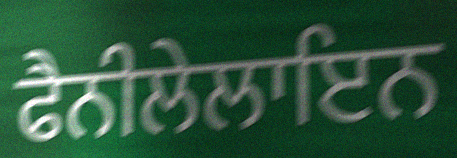
ਫੈਨੀਲੇਲਾਇਨ